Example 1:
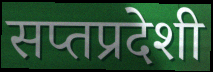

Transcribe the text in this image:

सप्तप्रदेशी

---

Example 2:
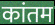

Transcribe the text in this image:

कांतम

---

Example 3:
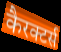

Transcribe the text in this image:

कैरक्टर्स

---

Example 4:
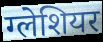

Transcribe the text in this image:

ग्लेशियर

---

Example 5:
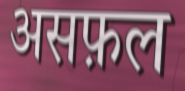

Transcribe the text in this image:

असफ़ल